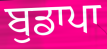
ਬੁਡਾਪਾ